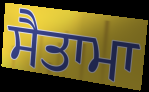
ਸੈਤਾਮਾ